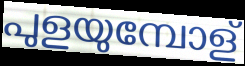
പുളയുമ്പോള്